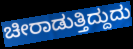
ಚೀರಾಡುತ್ತಿದ್ದುದು